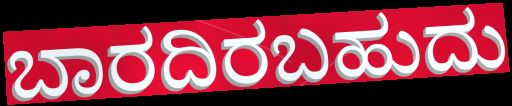
ಬಾರದಿರಬಹುದು